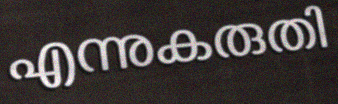
എന്നുകരുതി